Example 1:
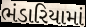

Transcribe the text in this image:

ભંડારિયામાં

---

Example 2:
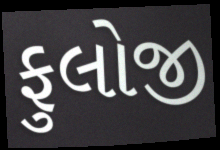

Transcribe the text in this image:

ફુલોજી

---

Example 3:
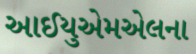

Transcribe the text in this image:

આઈયુએમએલના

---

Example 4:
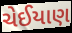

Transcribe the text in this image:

ચેઈયાણ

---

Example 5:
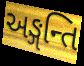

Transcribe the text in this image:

અઙ્ગન્તિ